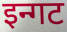
इन्गट